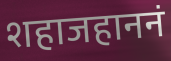
शहाजहाननं